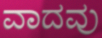
ವಾದವು